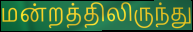
மன்றத்திலிருந்து